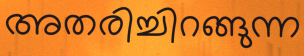
അതരിച്ചിറങ്ങുന്ന